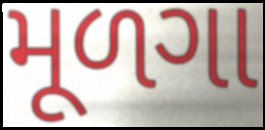
મૂળગા